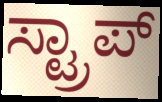
ಸ್ಟ್ರಾಪ್